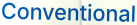
Conventional